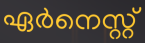
ഏർനെസ്റ്റ്